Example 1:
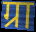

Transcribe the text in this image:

ग्रा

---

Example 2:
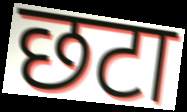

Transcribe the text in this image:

छटा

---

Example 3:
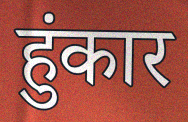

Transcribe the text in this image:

हुंकार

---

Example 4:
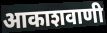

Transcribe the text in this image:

आकाशवाणी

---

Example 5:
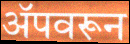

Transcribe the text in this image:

ॲपवरून